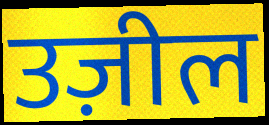
उज़ील